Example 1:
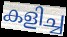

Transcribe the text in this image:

കളിച്ച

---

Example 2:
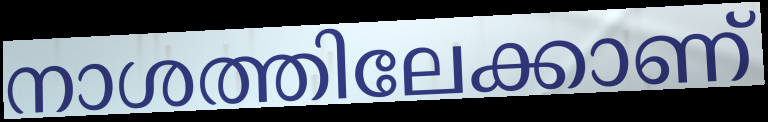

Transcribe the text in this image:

നാശത്തിലേക്കാണ്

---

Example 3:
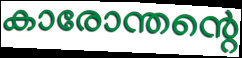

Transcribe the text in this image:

കാരോന്തന്റെ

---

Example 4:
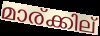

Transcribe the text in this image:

മാര്ക്കില്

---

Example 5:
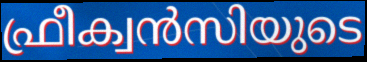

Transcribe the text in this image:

ഫ്രീക്വൻസിയുടെ